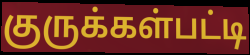
குருக்கள்பட்டி